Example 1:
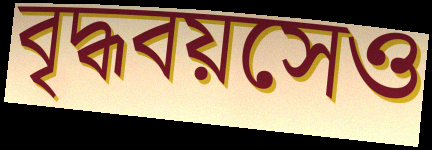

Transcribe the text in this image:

বৃদ্ধবয়সেও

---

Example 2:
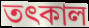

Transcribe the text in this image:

তৎকাল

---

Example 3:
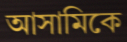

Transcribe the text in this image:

আসামিকে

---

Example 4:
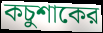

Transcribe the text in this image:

কচুশাকের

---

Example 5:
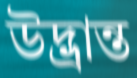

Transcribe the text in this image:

উদ্ভ্রান্ত